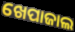
ଖେପାଜାଲ